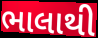
ભાલાથી